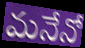
మనేనో